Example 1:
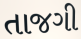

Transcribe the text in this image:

તાજગી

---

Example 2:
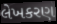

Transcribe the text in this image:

લેખકરણ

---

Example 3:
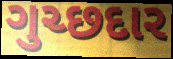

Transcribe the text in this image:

ગુચ્છદાર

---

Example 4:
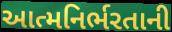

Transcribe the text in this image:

આત્મનિર્ભરતાની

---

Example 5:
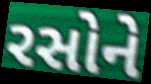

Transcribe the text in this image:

રસોને